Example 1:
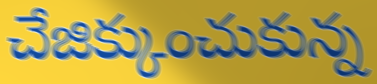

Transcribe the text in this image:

చేజిక్కుంచుకున్న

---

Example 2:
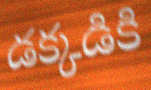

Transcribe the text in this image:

డక్కడికి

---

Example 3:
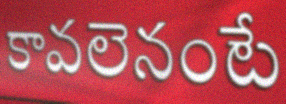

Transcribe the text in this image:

కావలెనంటే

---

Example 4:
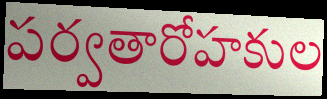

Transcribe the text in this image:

పర్వతారోహకుల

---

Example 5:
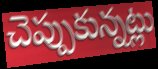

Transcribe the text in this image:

చెప్పుకున్నట్లు